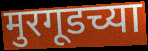
मुरगूडच्या